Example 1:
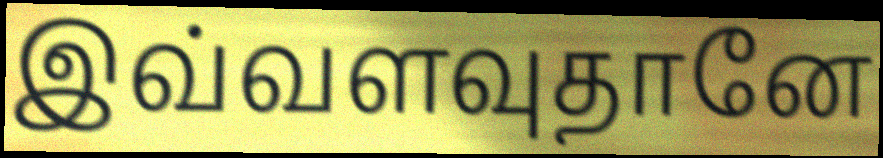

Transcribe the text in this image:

இவ்வளவுதானே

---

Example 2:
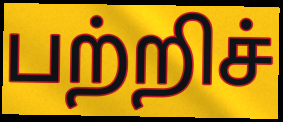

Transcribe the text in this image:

பற்றிச்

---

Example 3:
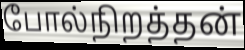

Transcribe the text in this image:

போல்நிறத்தன்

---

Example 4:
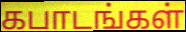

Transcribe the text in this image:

கபாடங்கள்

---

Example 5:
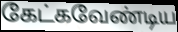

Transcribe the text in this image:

கேட்கவேண்டிய